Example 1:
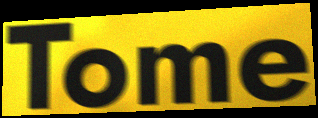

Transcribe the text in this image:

Tome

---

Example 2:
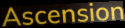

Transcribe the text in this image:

Ascension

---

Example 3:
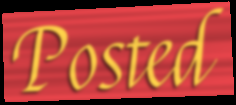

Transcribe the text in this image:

Posted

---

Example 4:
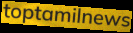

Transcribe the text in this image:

toptamilnews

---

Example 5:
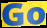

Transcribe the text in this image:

Go